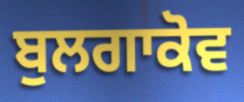
ਬੁਲਗਾਕੋਵ